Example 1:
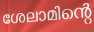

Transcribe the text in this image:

ശേലാമിന്റെ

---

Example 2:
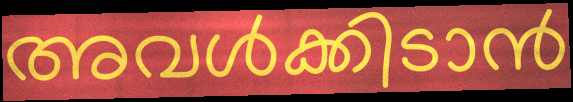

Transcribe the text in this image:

അവൾക്കിടാൻ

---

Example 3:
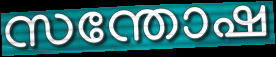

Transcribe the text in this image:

സന്തോഷ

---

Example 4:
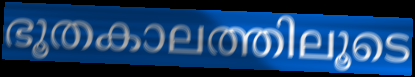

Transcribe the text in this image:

ഭൂതകാലത്തിലൂടെ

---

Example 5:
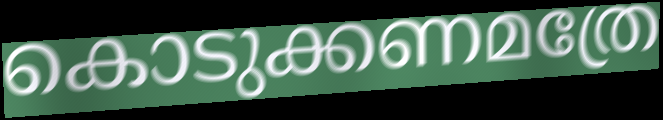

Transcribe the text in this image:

കൊടുക്കണമത്രേ